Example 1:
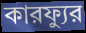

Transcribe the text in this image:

কারফ্যুর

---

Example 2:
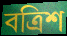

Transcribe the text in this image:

বত্রিশ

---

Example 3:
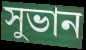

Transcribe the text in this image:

সুভান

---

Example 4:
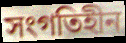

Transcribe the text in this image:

সংগতিহীন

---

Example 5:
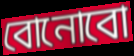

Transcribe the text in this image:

বোনোবো